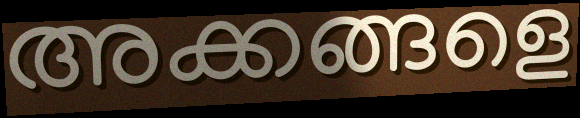
അക്കങ്ങളെ